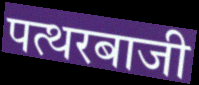
पत्थरबाजी